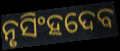
ନୃସିଂହଦେବ